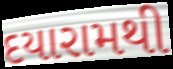
દયારામથી